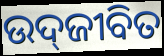
ଉଦ୍‌ଜୀବିତ